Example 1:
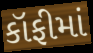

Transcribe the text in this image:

કૉફીમાં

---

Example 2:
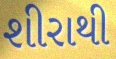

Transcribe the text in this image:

શીરાથી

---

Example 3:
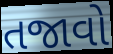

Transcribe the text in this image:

તજાવો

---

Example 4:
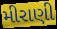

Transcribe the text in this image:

મીરાણી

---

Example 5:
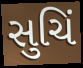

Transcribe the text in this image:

સુચિં